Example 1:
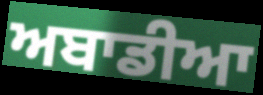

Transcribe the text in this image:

ਅਬਾਡੀਆ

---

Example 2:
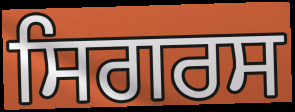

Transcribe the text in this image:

ਸਿਗਰਸ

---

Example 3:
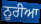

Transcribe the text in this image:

ਨੂਰੀਆ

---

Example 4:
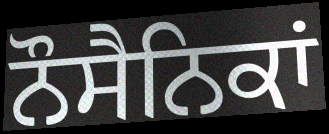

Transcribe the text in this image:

ਨੌਸੈਨਿਕਾਂ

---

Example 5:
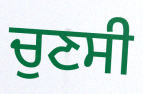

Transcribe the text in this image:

ਚੁਣਸੀ